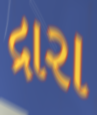
દ્રારા